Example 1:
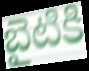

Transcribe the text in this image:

బైటికి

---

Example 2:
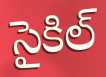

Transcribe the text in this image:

సైకిల్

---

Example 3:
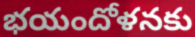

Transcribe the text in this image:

భయందోళనకు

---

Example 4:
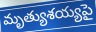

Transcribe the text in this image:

మృత్యుశయ్యపై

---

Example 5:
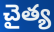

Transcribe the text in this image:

చైత్య